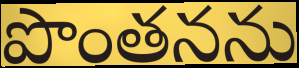
పొంతనను